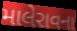
માલેરાવના